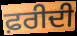
ਫ਼ਰੀਦੀ